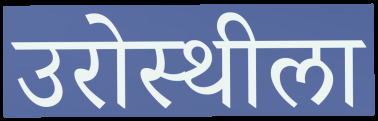
उरोस्थीला